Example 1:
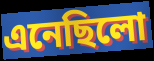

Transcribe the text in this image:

এনেছিলো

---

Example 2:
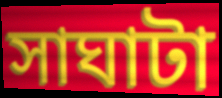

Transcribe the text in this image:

সাঘাটা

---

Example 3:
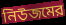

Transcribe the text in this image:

নিউজমের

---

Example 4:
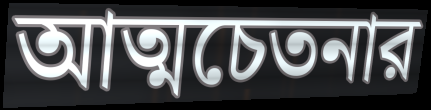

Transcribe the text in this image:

আত্মচেতনার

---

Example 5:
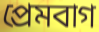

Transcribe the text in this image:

প্রেমবাগ